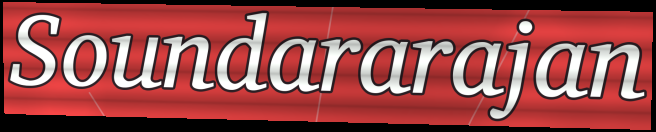
Soundararajan